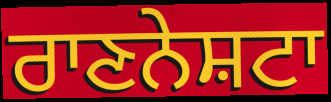
ਰਾਣਨੇਸ਼ਟਾ